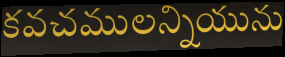
కవచములన్నియును